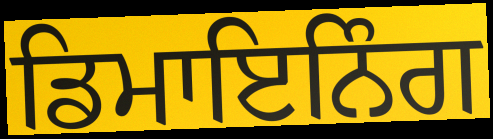
ਡਿਮਾਇਨਿੰਗ